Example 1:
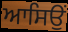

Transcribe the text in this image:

ਆਸਿਉਂ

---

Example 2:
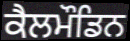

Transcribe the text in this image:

ਕੈਲਮੌਡਿਨ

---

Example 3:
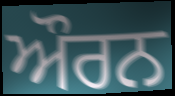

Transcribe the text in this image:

ਔਰਨ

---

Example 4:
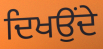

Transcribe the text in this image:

ਦਿਖਉਂਦੇ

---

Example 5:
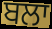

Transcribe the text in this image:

ਬਲਾ